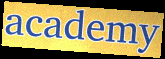
academy